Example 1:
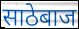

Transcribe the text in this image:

साठेबाज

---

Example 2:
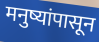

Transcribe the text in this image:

मनुष्यांपासून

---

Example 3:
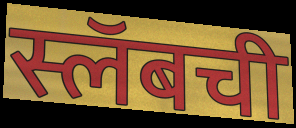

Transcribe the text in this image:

स्लॅबची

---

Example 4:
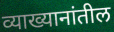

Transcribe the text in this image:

व्याख्यानांतील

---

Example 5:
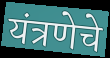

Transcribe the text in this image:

यंत्रणेचे